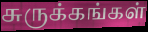
சுருக்கங்கள்